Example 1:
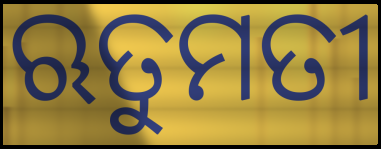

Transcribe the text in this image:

ଋତୁମତୀ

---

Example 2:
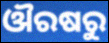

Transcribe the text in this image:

ଔରଷରୁ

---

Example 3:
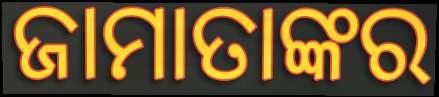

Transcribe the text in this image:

ଜାମାତାଙ୍କର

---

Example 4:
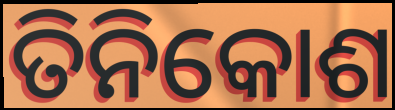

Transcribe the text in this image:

ତିନିକୋଶ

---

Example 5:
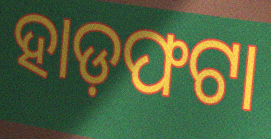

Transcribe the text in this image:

ହାଡ଼ଫଟା